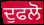
ਦੁਫਲੋ